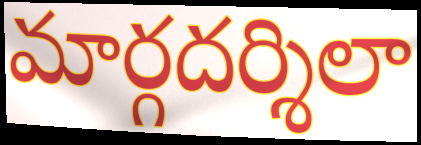
మార్గదర్శిలా